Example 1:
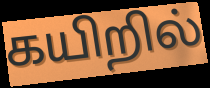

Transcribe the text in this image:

கயிறில்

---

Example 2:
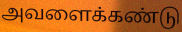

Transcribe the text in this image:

அவளைக்கண்டு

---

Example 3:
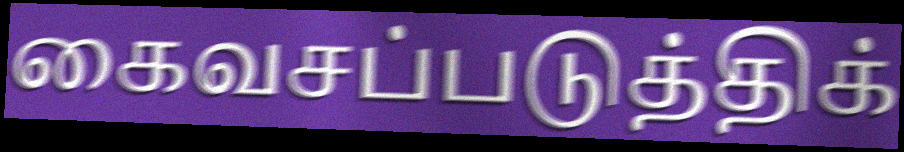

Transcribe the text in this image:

கைவசப்படுத்திக்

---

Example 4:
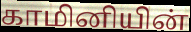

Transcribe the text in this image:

காமினியின்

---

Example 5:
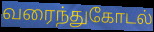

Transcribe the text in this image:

வரைந்துகோடல்